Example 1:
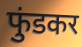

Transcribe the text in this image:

फुंडकर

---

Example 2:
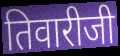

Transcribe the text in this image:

तिवारीजी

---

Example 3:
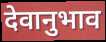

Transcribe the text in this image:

देवानुभाव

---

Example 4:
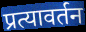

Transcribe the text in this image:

प्रत्यावर्तन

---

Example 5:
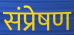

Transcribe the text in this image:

संप्रेषण